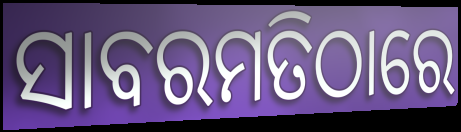
ସାବରମତିଠାରେ